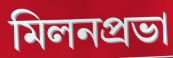
মিলনপ্রভা